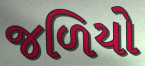
જળિયો